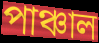
পাঞ্চাল